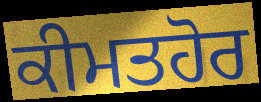
ਕੀਮਤਹੋਰ